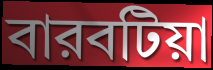
বারবটিয়া